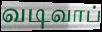
வடிவாப்